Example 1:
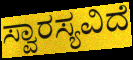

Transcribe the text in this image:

ಸ್ವಾರಸ್ಯವಿದೆ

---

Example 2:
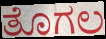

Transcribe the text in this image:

ತೊಗಲ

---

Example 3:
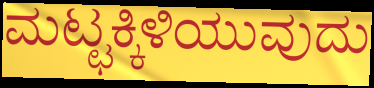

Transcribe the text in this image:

ಮಟ್ಟಕ್ಕಿಳಿಯುವುದು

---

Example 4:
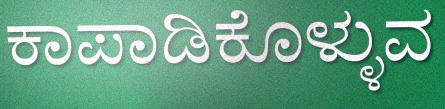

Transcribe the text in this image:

ಕಾಪಾಡಿಕೊಳ್ಳುವ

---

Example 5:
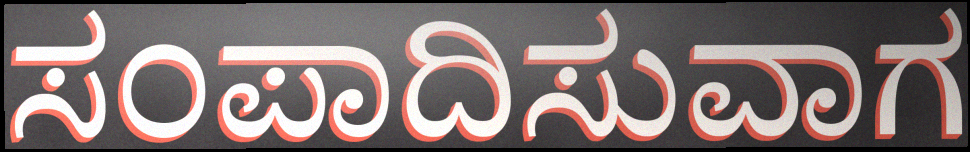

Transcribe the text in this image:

ಸಂಪಾದಿಸುವಾಗ